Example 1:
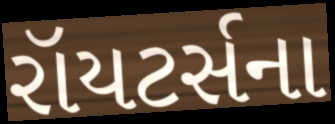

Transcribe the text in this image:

રૉયટર્સના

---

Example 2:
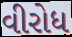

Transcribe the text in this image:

વીરોધ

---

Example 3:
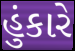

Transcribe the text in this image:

હુંકારે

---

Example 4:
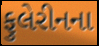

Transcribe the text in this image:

ફુલેરીનના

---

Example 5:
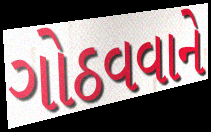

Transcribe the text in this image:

ગોઠવવાને